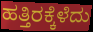
ಹತ್ತಿರಕ್ಕೆಳೆದು